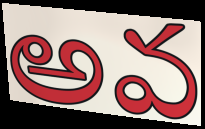
అవ